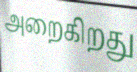
அறைகிறது